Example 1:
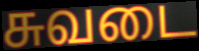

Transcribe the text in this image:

சுவடை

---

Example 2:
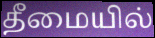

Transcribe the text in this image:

தீமையில்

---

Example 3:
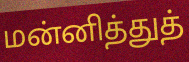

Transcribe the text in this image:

மன்னித்துத்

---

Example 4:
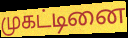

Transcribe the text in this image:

முகட்டினை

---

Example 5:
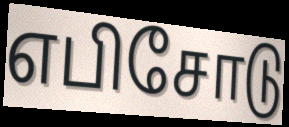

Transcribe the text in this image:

எபிசோடு